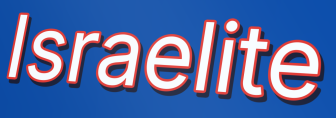
Israelite